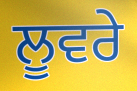
ਲੂਵਰੇ